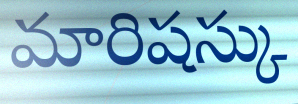
మారిషస్కు